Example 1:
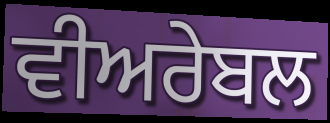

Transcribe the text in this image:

ਵੀਅਰੇਬਲ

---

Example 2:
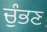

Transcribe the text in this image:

ਚੁੰਭਣ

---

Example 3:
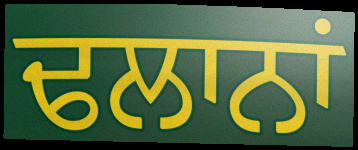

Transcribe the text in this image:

ਢਲਾਨਾਂ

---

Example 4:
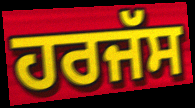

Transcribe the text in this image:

ਹਰਜੱਸ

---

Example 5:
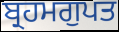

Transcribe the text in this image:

ਬ੍ਰਹਮਗੁਪਤ